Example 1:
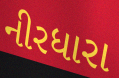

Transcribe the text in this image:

નીરધારા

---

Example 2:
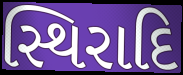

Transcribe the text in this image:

સ્થિરાદિ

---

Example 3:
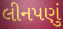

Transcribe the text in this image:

લીનપણું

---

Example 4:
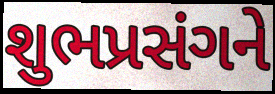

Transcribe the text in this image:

શુભપ્રસંગને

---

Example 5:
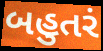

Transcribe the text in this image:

બહુતરં